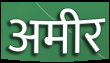
अमीर